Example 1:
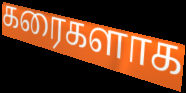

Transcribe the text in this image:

கரைகளாக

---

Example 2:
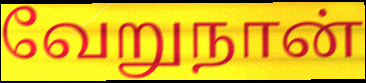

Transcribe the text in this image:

வேறுநான்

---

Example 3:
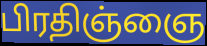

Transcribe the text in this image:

பிரதிஞ்ஞை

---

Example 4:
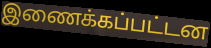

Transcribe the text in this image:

இணைக்கப்பட்டன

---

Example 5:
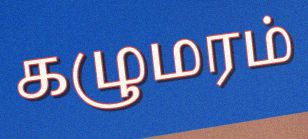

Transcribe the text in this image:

கழுமரம்